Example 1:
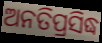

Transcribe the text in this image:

ଅନତିପ୍ରସିଦ୍ଧ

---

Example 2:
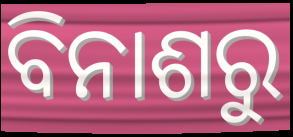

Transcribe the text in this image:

ବିନାଶରୁ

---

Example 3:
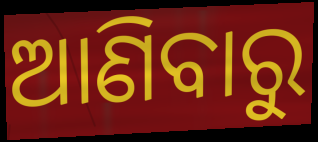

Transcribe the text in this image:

ଆଣିବାରୁ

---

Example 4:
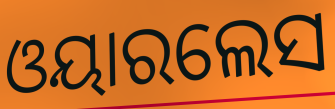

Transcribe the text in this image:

ଓୟାରଲେସ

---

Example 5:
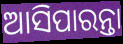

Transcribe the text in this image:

ଆସିପାରନ୍ତା